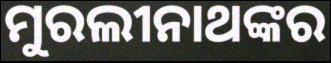
ମୁରଲୀନାଥଙ୍କର